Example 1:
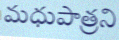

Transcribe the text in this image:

మధుపాత్రని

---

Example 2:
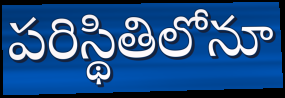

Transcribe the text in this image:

పరిస్థితిలోనూ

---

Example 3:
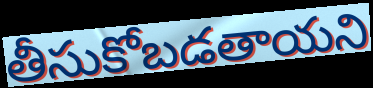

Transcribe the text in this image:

తీసుకోబడతాయని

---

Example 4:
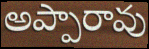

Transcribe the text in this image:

అప్పారావు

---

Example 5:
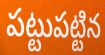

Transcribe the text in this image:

పట్టుపట్టిన